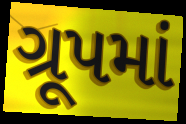
ગ્રૂપમાં